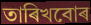
তাৰিখবোৰ